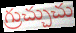
గ్రుచ్చుచు